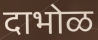
दाभोळ